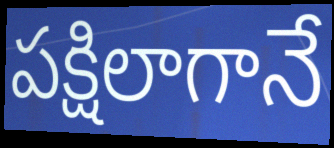
పక్షిలాగానే